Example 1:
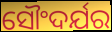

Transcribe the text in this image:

ସୌଂଦର୍ଯର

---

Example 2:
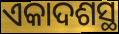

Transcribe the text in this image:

ଏକାଦଶସ୍ଥ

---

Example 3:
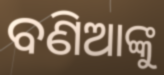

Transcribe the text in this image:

ବଣିଆଙ୍କୁ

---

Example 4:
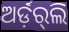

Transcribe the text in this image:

ଅର୍ଡ଼ର୍‌ଲି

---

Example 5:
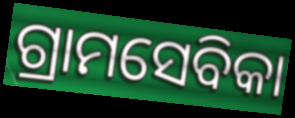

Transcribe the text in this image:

ଗ୍ରାମସେବିକା